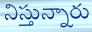
నిస్తున్నారు